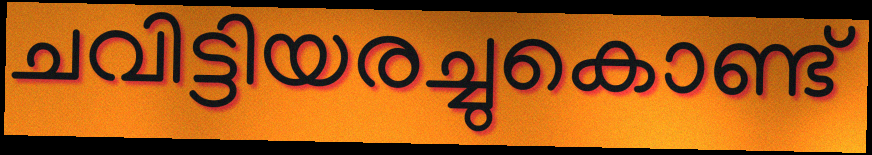
ചവിട്ടിയരച്ചുകൊണ്ട്